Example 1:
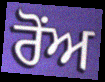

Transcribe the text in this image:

ਰੋਂਅ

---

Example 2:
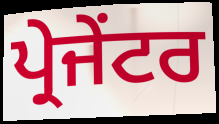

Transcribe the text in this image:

ਪ੍ਰੇਜੇਂਟਰ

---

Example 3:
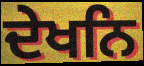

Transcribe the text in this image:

ਦੇਖਨਿ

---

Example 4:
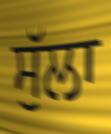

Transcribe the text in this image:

ਸੁੱਲਾ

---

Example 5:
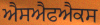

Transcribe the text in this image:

ਐਸਐਫਐਕਸ